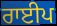
ਰਾਈਪ